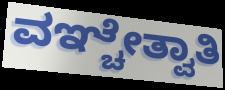
ವಞ್ಚೇತ್ವಾತಿ